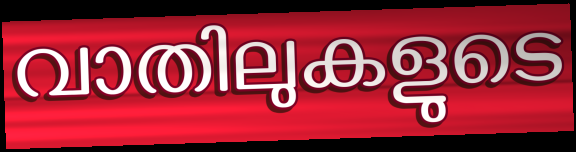
വാതിലുകളുടെ